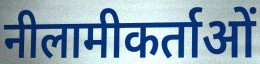
नीलामीकर्ताओं